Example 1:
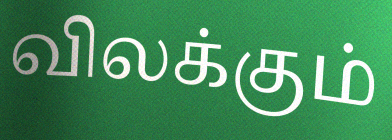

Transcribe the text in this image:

விலக்கும்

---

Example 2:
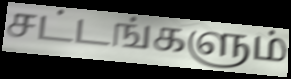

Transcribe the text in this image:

சட்டங்களும்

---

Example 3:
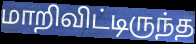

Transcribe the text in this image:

மாறிவிட்டிருந்த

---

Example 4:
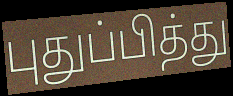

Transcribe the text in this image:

புதுப்பித்து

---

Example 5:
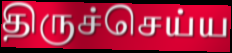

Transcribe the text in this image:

திருச்செய்ய